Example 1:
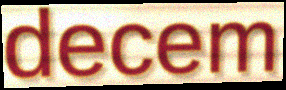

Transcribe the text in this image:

decem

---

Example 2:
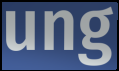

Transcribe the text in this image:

ung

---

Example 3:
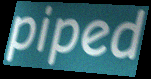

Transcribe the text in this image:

piped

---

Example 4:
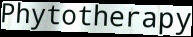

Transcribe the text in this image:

Phytotherapy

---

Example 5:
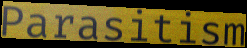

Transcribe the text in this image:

Parasitism